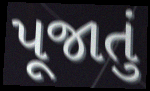
પૂજાતું